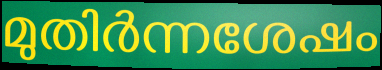
മുതിർന്നശേഷം